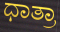
ಧಾತ್ರಾ